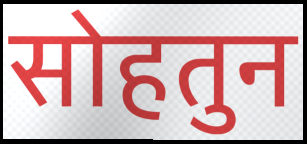
सोहतुन